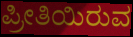
ಪ್ರೀತಿಯಿರುವ